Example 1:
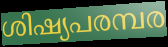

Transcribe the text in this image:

ശിഷ്യപരമ്പര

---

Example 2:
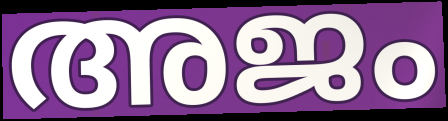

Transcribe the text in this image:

അജം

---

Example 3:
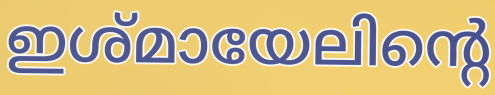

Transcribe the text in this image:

ഇശ്മായേലിന്റെ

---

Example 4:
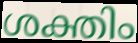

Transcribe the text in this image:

ശക്തിം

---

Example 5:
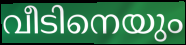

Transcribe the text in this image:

വീടിനെയും